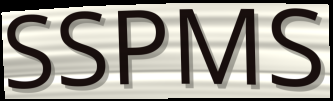
SSPMS